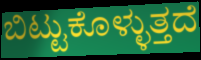
ಬಿಟ್ಟುಕೊಳ್ಳುತ್ತದೆ